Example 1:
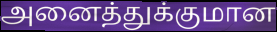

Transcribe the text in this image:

அனைத்துக்குமான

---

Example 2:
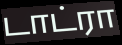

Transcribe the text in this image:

டாட்ரா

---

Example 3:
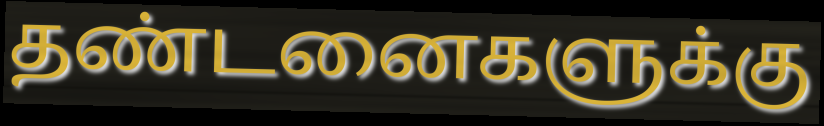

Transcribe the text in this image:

தண்டனைகளுக்கு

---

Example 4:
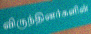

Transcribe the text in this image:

விருந்தினர்களின்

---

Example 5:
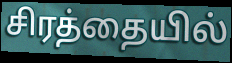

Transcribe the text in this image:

சிரத்தையில்